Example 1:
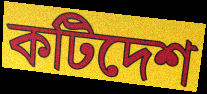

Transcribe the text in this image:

কটিদেশ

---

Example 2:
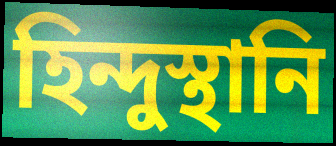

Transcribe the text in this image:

হিন্দুস্থানি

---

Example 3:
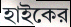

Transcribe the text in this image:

হাইকের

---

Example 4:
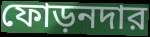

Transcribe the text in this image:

ফোড়নদার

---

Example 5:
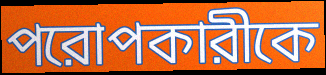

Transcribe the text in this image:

পরোপকারীকে